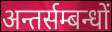
अन्तर्सम्बन्धों